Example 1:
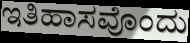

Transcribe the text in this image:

ಇತಿಹಾಸವೊಂದು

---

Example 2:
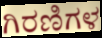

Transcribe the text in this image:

ಗಿರಣಿಗಳ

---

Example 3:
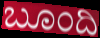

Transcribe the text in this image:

ಬೂಂದಿ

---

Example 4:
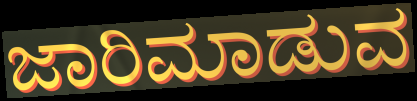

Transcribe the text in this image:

ಜಾರಿಮಾಡುವ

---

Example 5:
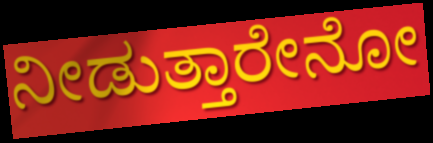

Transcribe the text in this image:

ನೀಡುತ್ತಾರೇನೋ